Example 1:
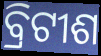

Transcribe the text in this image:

ବ୍ରିଟୀଶ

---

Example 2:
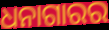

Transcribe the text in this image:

ଧନାଗାରର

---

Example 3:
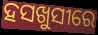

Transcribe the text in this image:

ହସଖୁସୀରେ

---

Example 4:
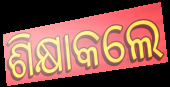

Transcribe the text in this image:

ଶିକ୍ଷାକଲେ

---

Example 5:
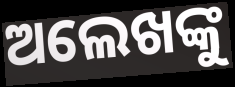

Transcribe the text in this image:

ଅଲେଖଙ୍କୁ